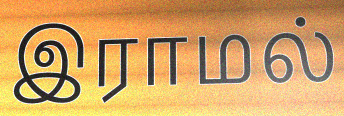
இராமல்